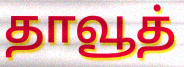
தாவூத்